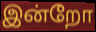
இன்றோ